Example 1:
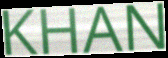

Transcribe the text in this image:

KHAN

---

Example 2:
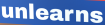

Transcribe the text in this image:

unlearns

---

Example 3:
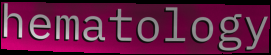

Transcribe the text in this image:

hematology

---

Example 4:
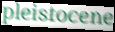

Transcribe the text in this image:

pleistocene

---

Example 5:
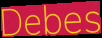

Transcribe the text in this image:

Debes